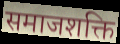
समाजशक्ति